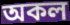
অকল